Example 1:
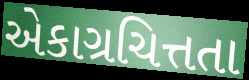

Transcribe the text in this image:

એકાગ્રચિત્તતા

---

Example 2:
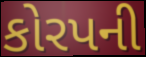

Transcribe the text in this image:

કોરપની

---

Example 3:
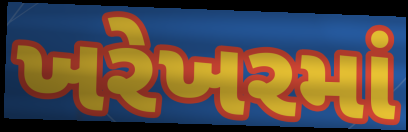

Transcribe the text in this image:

ખરેખરમાં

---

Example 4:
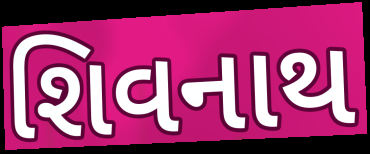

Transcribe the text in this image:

શિવનાથ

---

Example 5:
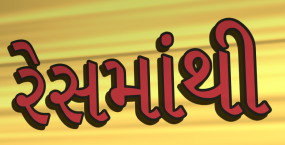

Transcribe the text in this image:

રેસમાંથી